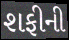
શફીની